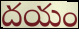
దయం